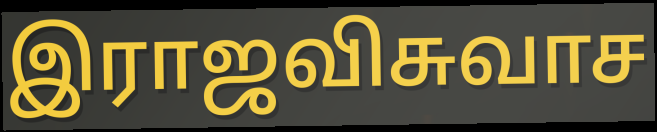
இராஜவிசுவாச